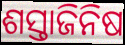
ଶସ୍ତାଜିନିଷ